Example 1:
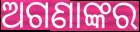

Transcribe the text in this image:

ଅଗଣାଙ୍କର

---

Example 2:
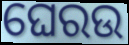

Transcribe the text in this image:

ଘେରଉ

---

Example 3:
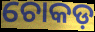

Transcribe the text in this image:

ଚୋକଡ଼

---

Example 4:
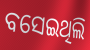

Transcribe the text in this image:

ବସେଇଥିଲି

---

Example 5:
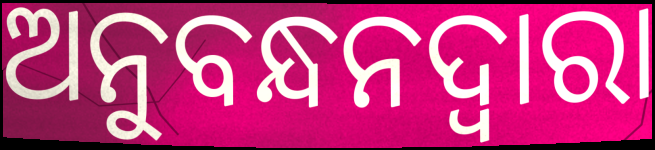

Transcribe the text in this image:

ଅନୁବନ୍ଧନଦ୍ୱାରା